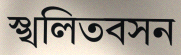
স্খলিতবসন